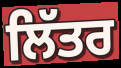
ਲਿੱਤਰ